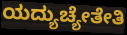
ಯದ್ಯುಚ್ಯೇತೇತಿ